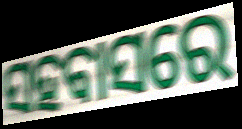
ସହବାସରେ